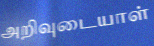
அறிவுடையாள்